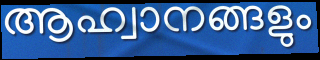
ആഹ്വാനങ്ങളും